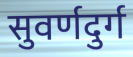
सुवर्णदुर्ग